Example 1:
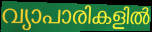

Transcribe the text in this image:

വ്യാപാരികളിൽ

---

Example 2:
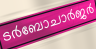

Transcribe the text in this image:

ടർബോചാർജർ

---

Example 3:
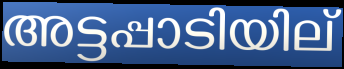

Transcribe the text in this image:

അട്ടപ്പാടിയില്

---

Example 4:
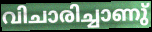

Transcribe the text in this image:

വിചാരിച്ചാണു്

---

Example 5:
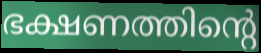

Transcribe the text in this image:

ഭക്ഷണത്തിന്റെ